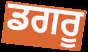
ਡਗਰੂ